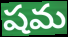
షమ